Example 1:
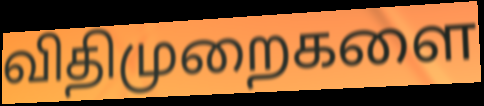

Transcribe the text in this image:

விதிமுறைகளை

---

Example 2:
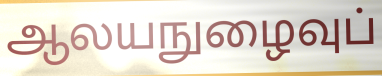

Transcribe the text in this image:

ஆலயநுழைவுப்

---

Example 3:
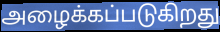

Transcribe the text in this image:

அழைக்கப்படுகிறது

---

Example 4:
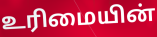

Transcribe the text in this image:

உரிமையின்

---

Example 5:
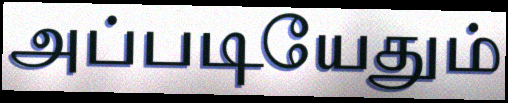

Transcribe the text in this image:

அப்படியேதும்